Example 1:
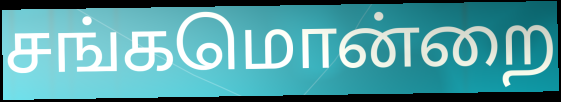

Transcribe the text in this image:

சங்கமொன்றை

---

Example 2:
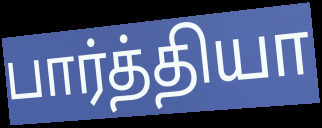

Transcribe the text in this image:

பார்த்தியா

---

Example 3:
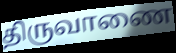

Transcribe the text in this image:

திருவாணை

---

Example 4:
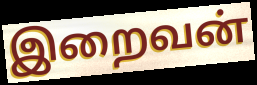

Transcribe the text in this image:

இறைவன்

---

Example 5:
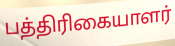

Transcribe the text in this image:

பத்திரிகையாளர்